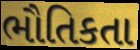
ભૌતિકતા